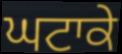
ਘਟਾਕੇ